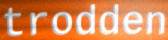
trodden